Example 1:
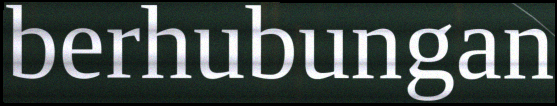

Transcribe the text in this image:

berhubungan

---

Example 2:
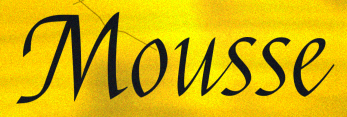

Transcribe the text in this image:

Mousse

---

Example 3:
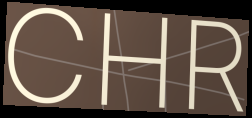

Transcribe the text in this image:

CHR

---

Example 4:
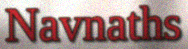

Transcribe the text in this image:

Navnaths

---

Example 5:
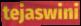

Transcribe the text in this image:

tejaswini